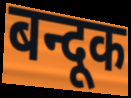
बन्दूक